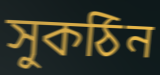
সুকঠিন